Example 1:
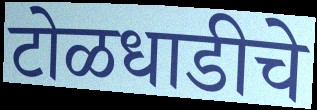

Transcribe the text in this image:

टोळधाडीचे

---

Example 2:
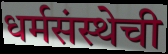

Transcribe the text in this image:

धर्मसंस्थेची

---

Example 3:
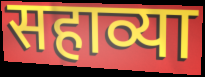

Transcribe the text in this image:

सहाव्या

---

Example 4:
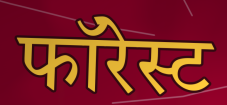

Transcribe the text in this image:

फॉरेस्ट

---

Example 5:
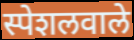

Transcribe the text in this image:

स्पेशलवाले